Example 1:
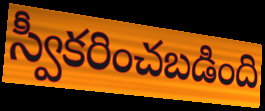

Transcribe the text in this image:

స్వీకరించబడింది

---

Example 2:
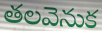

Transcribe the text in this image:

తలవెనుక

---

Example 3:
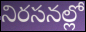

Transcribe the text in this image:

నిరసనల్లో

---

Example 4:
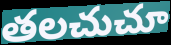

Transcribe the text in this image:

తలచుచూ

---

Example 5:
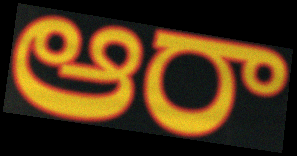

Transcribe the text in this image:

ఆరా